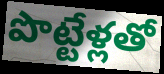
పొట్టేళ్లతో